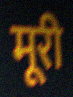
मूरी